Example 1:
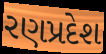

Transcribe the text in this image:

રણપ્રદેશ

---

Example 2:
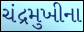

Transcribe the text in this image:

ચંદ્રમુખીના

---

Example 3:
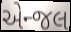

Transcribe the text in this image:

એન્જલ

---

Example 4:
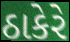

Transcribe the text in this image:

ઠાકેરે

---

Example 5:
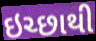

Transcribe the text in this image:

ઇચ્છાથી